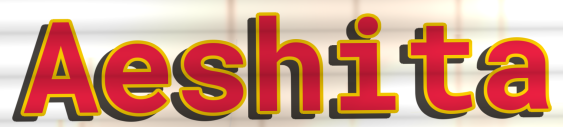
Aeshita